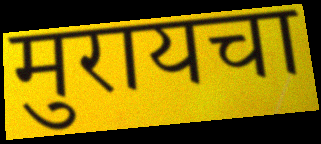
मुरायचा